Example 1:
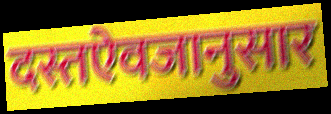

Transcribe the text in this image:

दस्तऐवजानुसार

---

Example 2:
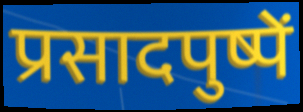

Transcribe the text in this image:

प्रसादपुष्पें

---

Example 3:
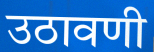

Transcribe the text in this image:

उठावणी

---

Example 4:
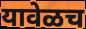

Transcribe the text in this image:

यावेळच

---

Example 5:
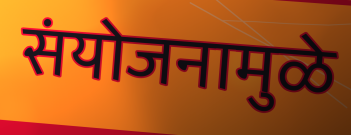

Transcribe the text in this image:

संयोजनामुळे